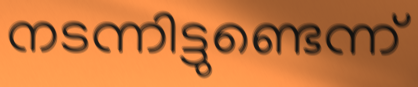
നടന്നിട്ടുണ്ടെന്ന്